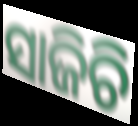
ସାଜିଚି